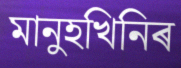
মানুহখিনিৰ